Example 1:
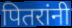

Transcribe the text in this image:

पितरांनी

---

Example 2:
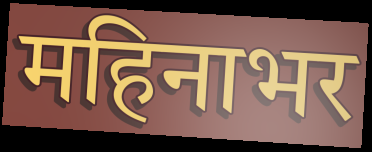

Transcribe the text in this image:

महिनाभर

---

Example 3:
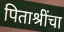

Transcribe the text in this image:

पिताश्रींचा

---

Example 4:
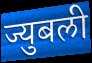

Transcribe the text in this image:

ज्युबली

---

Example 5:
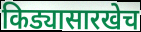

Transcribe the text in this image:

किड्यासारखेच